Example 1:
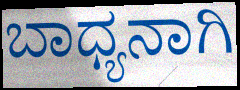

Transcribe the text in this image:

ಬಾಧ್ಯನಾಗಿ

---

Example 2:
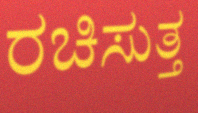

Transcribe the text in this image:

ರಚಿಸುತ್ತ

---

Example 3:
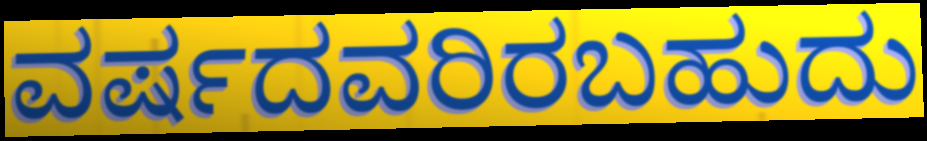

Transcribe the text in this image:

ವರ್ಷದವರಿರಬಹುದು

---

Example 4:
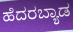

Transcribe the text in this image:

ಹೆದರಬ್ಯಾಡ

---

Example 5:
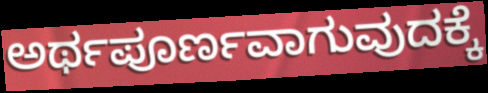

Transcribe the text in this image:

ಅರ್ಥಪೂರ್ಣವಾಗುವುದಕ್ಕೆ